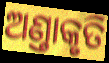
ଅଣ୍ତାକୃତି